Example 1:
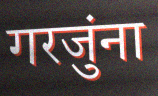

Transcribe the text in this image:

गरजुंना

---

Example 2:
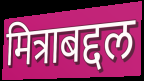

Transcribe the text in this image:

मित्राबद्दल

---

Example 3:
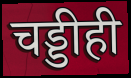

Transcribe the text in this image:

चड्डीही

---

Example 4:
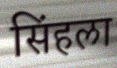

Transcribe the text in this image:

सिंहला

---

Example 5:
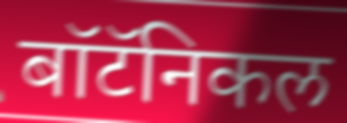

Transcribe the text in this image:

बॉटॅनिकल